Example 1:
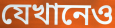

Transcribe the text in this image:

যেখানেও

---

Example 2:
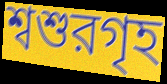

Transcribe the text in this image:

শ্বশুরগৃহ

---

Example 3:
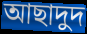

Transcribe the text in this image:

আছাদুদ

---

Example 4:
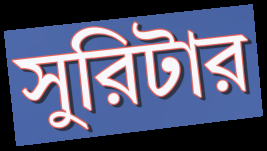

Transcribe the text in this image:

সুরিটার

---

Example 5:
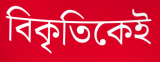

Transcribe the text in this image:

বিকৃতিকেই